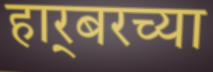
हार्बरच्या